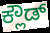
ಕ್ಲೌಡ್